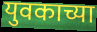
युवकाच्या